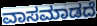
ವಾಸಮಾಡದೆ